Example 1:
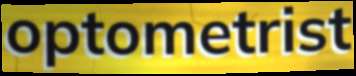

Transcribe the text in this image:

optometrist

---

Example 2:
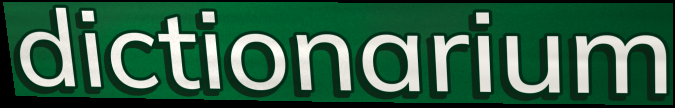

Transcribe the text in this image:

dictionarium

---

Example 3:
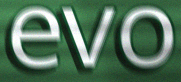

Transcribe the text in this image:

evo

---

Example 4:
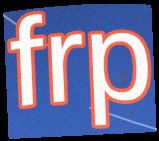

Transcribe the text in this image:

frp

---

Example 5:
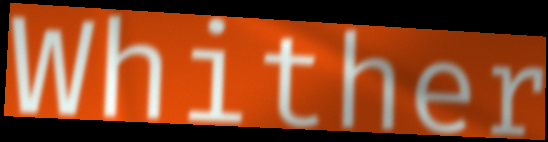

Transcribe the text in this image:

Whither